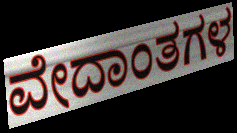
ವೇದಾಂತಗಳ